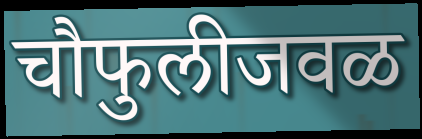
चौफुलीजवळ